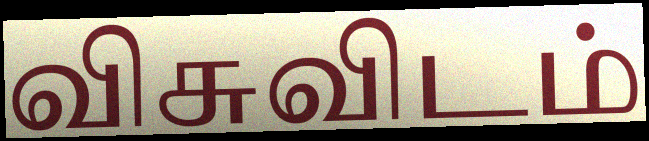
விசுவிடம்